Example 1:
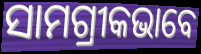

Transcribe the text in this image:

ସାମଗ୍ରୀକଭାବେ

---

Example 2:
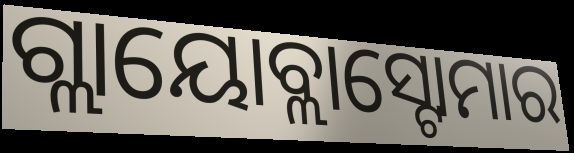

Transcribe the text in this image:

ଗ୍ଲାୟୋବ୍ଲାସ୍ଟୋମାର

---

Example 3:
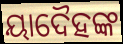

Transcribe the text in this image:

ୟାଦୈହଙ୍କ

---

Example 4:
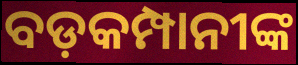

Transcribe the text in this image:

ବଡ଼କମ୍ପାନୀଙ୍କ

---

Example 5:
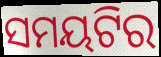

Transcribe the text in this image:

ସମୟଟିର